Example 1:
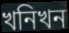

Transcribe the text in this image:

খনিখন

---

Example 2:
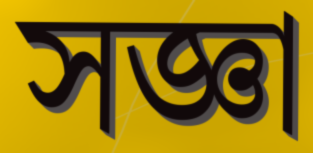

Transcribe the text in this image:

সজ্ঞা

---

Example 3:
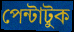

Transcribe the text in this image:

পেন্টাটুক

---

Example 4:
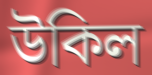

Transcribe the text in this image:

উকিল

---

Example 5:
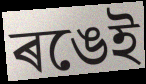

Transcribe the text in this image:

ৰঙেই